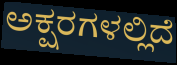
ಅಕ್ಷರಗಳಲ್ಲಿದೆ